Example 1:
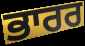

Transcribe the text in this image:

ਭਾਰਰ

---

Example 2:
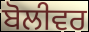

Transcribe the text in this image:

ਬੋਲੀਵਰ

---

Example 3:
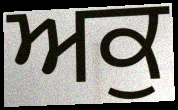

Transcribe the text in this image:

ਅਕੁ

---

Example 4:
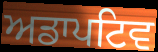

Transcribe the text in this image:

ਅਡਾਪਟਿਵ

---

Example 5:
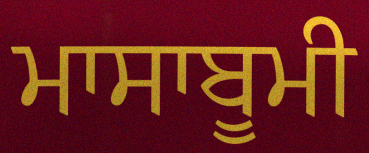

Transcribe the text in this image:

ਮਾਸਾਬੂਮੀ